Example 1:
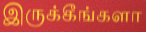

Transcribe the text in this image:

இருக்கீங்களா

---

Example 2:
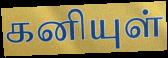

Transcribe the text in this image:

கனியுள்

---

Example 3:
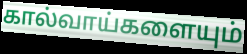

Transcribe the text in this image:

கால்வாய்களையும்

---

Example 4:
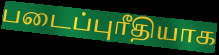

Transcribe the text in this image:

படைப்புரீதியாக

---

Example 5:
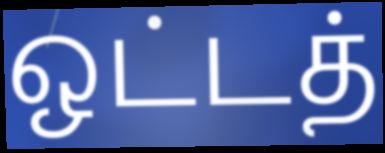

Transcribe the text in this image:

ஒட்டத்